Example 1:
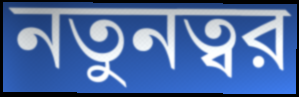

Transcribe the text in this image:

নতুনত্বর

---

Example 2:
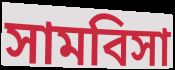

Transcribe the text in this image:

সামবিসা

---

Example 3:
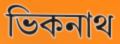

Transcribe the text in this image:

ভিকনাথ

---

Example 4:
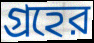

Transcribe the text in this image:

গ্রহের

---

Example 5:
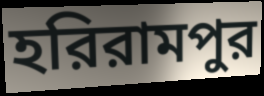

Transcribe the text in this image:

হরিরামপুর